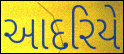
આદરિયે